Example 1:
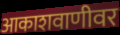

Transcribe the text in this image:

आकाशवाणीवर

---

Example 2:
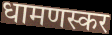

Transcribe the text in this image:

धामणस्कर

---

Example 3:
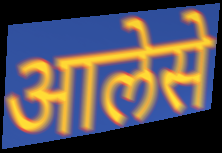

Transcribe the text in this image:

आलेसे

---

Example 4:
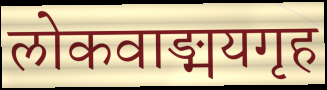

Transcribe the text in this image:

लोकवाङ्मयगृह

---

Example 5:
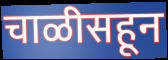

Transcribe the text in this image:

चाळीसहून